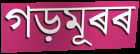
গড়মূৰৰ